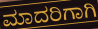
ಮಾದರಿಗಾಗಿ